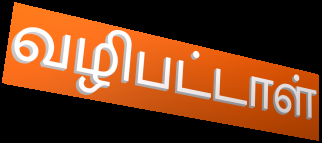
வழிபட்டாள்